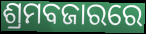
ଶ୍ରମବଜାରରେ